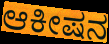
ಆಕೀಷನ